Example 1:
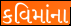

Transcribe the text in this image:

કવિમાંના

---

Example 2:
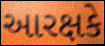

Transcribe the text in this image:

આરક્ષકે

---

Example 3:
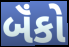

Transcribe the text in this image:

બૅંકો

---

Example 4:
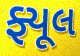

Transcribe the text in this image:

ફ્યૂલ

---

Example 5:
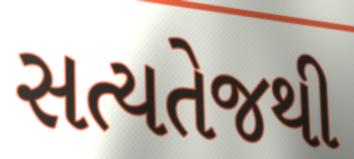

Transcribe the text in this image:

સત્યતેજથી